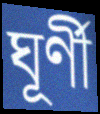
ঘূৰ্ণী